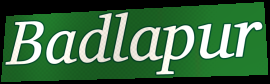
Badlapur